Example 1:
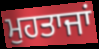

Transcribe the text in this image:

ਮੁਹਤਾਜਾਂ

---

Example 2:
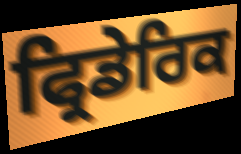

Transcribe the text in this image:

ਫ੍ਰਿਡੇਰਿਕ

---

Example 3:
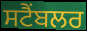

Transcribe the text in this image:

ਸਟੈਂਬਲਰ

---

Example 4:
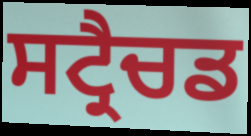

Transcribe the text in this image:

ਸਟ੍ਰੈਚਡ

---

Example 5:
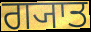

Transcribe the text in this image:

ਗ੍ਯਾਤ